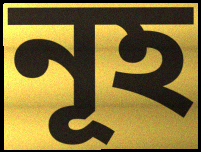
নূহ